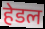
हेडल